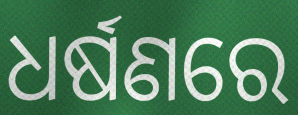
ଧର୍ଷଣରେ